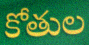
కోతుల